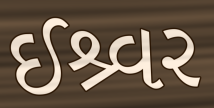
ઈશ્ર્વર